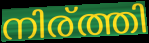
നിര്ത്തി